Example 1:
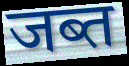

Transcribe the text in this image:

जब्त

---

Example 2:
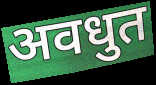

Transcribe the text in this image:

अवधुत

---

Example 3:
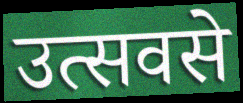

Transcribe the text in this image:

उत्सवसे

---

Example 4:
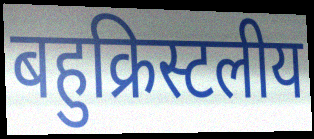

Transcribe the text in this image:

बहुक्रिस्टलीय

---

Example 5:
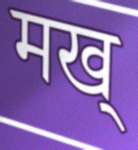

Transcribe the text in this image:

मख्